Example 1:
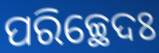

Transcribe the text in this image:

ପରିଚ୍ଛେଦଃ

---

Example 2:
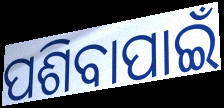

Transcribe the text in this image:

ପଶିବାପାଇଁ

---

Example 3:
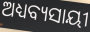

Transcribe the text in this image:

ଅଧ୍ୟବ୍ୟସାୟୀ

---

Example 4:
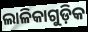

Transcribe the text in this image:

ଲାଳିକାଗୁଡ଼ିକ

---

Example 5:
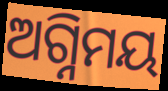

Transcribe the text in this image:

ଅଗ୍ନିମୟ